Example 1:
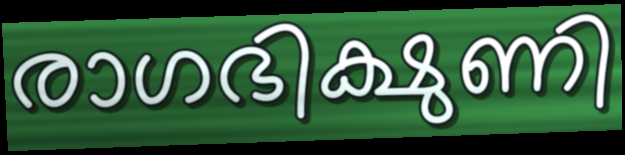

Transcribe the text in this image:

രാഗഭിക്ഷുണി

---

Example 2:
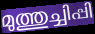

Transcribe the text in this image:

മുത്തുച്ചിപ്പി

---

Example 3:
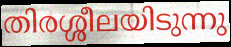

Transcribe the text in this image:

തിരശ്ശീലയിടുന്നു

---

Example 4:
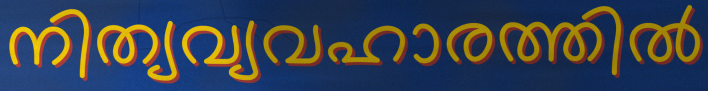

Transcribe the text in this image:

നിത്യവ്യവഹാരത്തിൽ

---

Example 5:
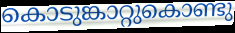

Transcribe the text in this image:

കൊടുങ്കാറ്റുകൊണ്ടു